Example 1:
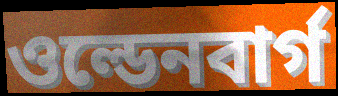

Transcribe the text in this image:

ওল্ডেনবার্গ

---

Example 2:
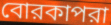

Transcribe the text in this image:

বোরকাপরা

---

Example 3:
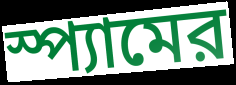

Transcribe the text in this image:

স্প্যামের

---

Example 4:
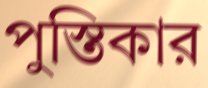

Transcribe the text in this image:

পুস্তিকার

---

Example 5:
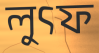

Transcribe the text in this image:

লুৎফ